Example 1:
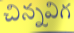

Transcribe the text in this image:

చిన్నవిగ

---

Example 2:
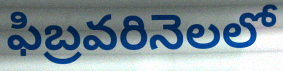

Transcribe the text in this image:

ఫిబ్రవరినెలలో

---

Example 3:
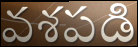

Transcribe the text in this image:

వశపడి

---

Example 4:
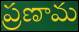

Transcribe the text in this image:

ప్రణామ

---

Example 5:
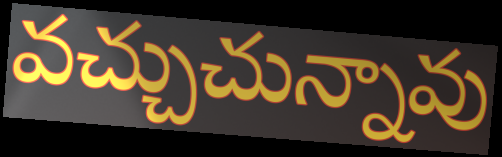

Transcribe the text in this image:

వచ్చుచున్నావు